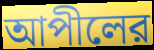
আপীলের